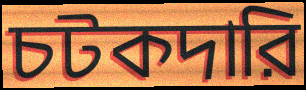
চটকদারি